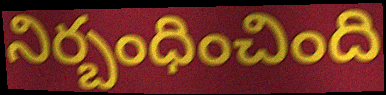
నిర్బంధించింది